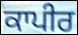
ਕਾਪੀਰ